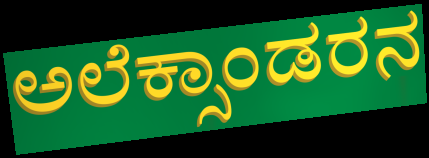
ಅಲೆಕ್ಸಾಂಡರನ